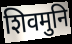
शिवमुनि